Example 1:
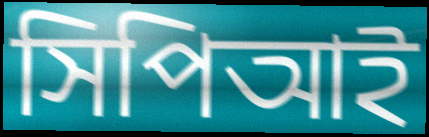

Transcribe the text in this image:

সিপিআই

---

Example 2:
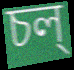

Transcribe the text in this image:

চল্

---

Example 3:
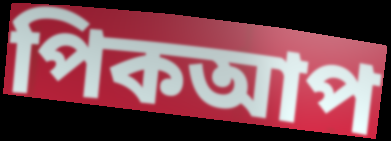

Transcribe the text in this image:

পিকআপ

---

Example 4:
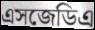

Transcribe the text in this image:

এসজেডিএ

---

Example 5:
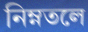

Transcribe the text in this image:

নিম্নতলে